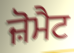
ਜ਼ੋਮੈਟ